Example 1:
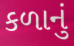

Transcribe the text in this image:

કળાનું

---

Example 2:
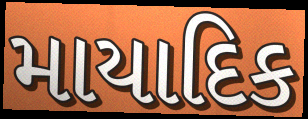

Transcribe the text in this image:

માયાદિક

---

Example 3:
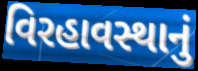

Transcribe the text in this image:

વિરહાવસ્થાનું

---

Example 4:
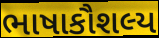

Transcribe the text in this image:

ભાષાકૌશલ્ય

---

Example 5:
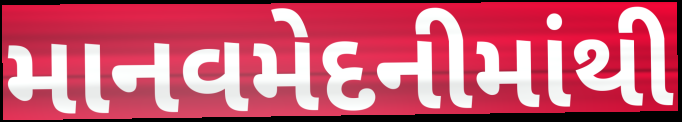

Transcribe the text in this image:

માનવમેદનીમાંથી